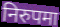
निरुपमा